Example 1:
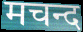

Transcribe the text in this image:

मचन्द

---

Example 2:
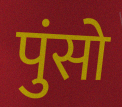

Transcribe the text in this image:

पुंसो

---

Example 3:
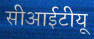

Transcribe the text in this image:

सीआईटीयू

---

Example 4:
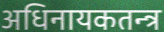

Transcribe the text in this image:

अधिनायकतन्त्र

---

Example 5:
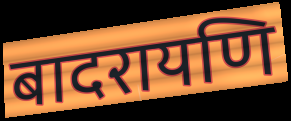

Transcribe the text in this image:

बादरायणि